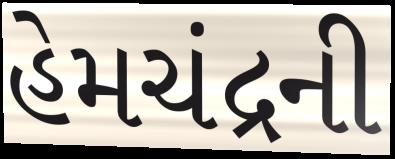
હેમચંદ્રની